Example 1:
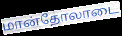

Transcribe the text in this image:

மான்தோலாடை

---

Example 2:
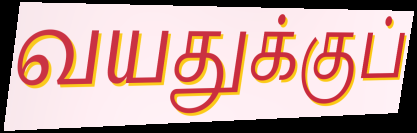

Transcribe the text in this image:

வயதுக்குப்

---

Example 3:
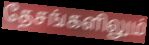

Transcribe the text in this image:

தேசங்களிலும்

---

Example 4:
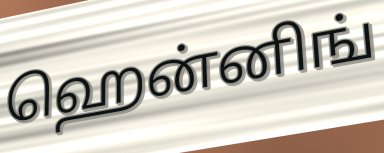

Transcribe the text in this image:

ஹென்னிங்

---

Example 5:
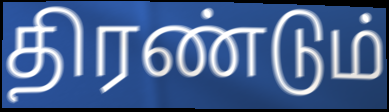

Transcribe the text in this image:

திரண்டும்